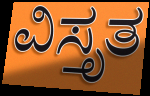
ವಿಸ್ತೃತ